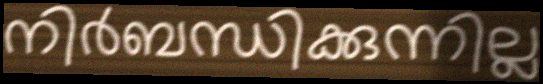
നിർബന്ധിക്കുന്നില്ല